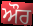
ਔਰ